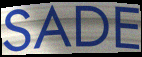
SADE